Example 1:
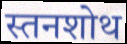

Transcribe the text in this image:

स्तनशोथ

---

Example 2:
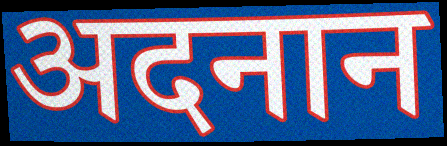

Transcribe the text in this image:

अदनान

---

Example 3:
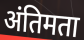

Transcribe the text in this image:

अंतिमता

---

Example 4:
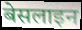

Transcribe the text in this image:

बेसलाइन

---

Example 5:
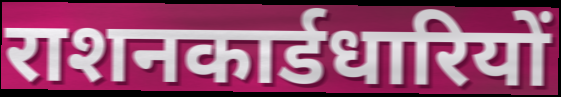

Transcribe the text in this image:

राशनकार्डधारियों